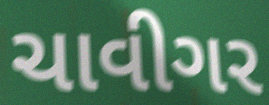
ચાવીગર